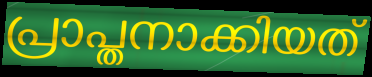
പ്രാപ്തനാക്കിയത്